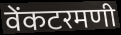
वेंकटरमणी